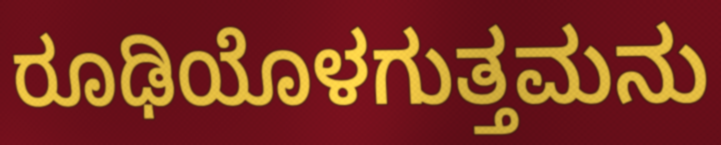
ರೂಢಿಯೊಳಗುತ್ತಮನು